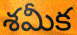
శమీక